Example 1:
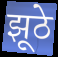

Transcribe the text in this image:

झूठे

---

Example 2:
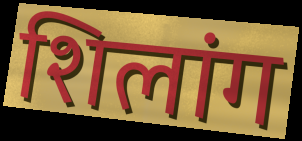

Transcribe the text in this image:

शिलांग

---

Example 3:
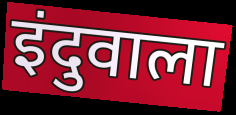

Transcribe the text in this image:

इंदुवाला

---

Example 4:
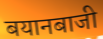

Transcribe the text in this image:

बयानबाजी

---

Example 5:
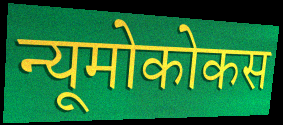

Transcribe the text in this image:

न्यूमोकोकस